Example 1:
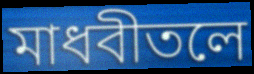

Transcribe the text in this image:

মাধবীতলে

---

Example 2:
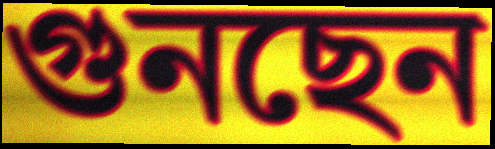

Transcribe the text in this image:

গুনছেন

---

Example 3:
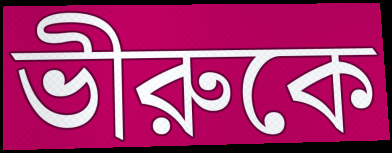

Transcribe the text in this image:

ভীরুকে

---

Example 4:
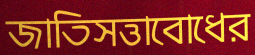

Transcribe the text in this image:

জাতিসত্তাবোধের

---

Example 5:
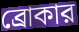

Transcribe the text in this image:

ব্রোকার